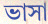
ভাসা